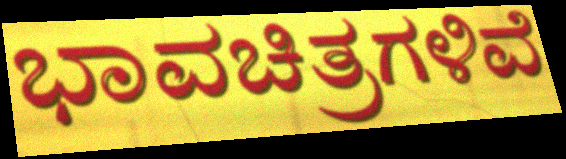
ಭಾವಚಿತ್ರಗಳಿವೆ